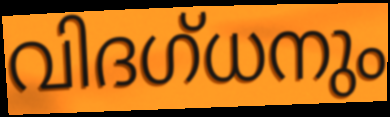
വിദഗ്ധനും